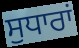
ਸੁਧਾਰਾਂ